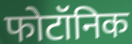
फोटॉनिक